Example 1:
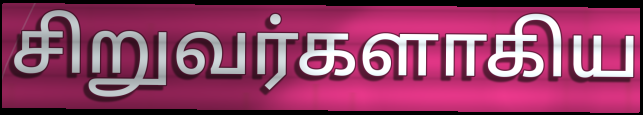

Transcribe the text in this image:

சிறுவர்களாகிய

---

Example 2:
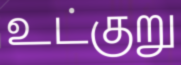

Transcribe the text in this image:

உட்குறு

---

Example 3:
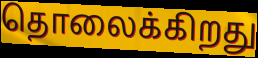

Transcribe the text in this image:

தொலைக்கிறது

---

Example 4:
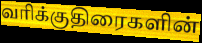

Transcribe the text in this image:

வரிக்குதிரைகளின்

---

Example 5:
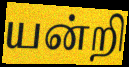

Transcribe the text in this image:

யன்றி